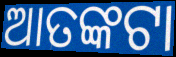
ଆତଙ୍କଟା